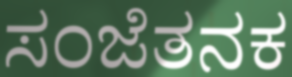
ಸಂಜೆತನಕ